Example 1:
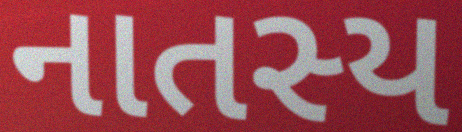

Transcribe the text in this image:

નાતસ્ય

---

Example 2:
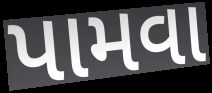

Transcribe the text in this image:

પામવા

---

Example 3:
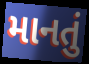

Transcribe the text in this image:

માનતું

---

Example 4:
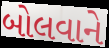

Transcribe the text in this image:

બોલવાને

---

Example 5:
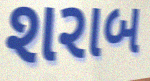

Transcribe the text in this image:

શરાબ